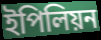
ইপিলিয়ন